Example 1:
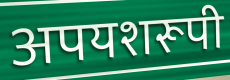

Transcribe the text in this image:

अपयशरूपी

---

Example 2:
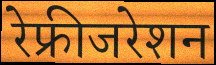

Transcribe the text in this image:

रेफ्रीजरेशन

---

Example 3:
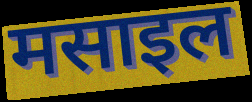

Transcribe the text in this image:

मसाइल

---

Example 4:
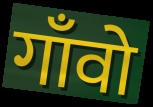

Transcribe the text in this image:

गाँवो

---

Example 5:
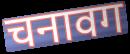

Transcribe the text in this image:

चनावग